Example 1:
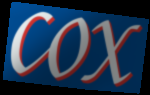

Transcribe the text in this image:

cox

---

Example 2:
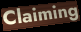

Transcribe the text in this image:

Claiming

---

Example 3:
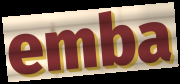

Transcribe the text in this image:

emba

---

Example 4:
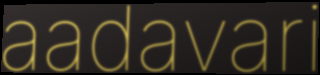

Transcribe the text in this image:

aadavari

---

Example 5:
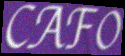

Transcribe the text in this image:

CAFO